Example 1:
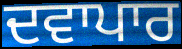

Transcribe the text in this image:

ਦਵਾਪਾਰ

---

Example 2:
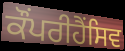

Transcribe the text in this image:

ਕੌਂਪਰੀਹੈਂਸਿਵ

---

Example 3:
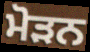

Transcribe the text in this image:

ਮੋੜਨ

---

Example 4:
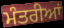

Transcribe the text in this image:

ਮੰਤਰੀਆਂ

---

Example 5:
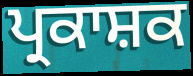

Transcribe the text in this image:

ਪ੍ਰਕਾਸ਼ਕ